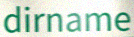
dirname